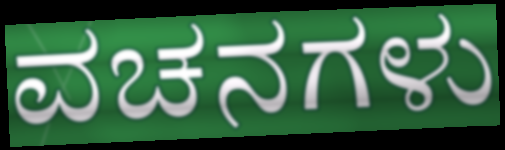
ವಚನಗಳು